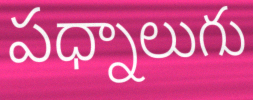
పధ్నాలుగు